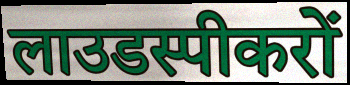
लाउडस्पीकरों